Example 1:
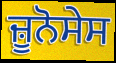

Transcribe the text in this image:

ਜ਼ੂਨੋਸੇਸ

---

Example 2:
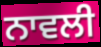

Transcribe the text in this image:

ਨਾਵਲੀ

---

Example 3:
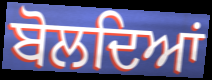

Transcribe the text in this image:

ਬੋਲਦਿਆਂ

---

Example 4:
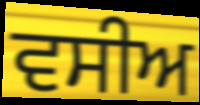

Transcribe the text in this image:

ਵਸੀਅ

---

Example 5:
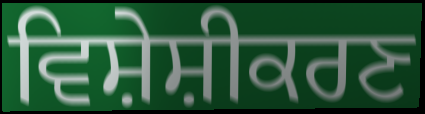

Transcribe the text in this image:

ਵਿਸ਼ੇਸ਼ੀਕਰਣ